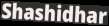
Shashidhar